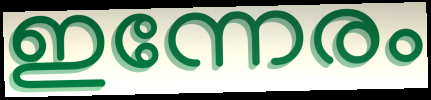
ഇന്നേരം